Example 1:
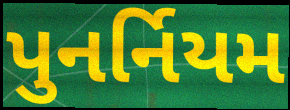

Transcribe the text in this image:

પુનર્નિયમ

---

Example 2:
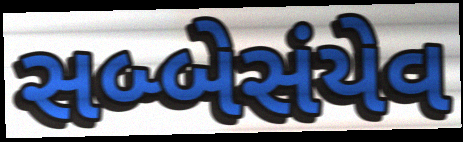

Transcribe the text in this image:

સબ્બેસંયેવ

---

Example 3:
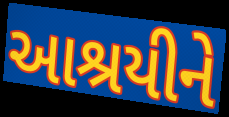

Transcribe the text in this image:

આશ્રયીને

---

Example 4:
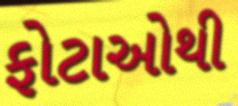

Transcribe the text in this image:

ફોટાઓથી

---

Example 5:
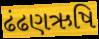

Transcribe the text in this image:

ઢંઢણઋષિ